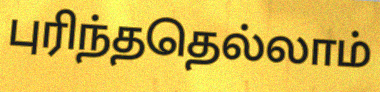
புரிந்ததெல்லாம்